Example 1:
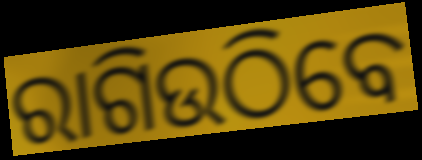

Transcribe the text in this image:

ରାଗିଉଠିବେ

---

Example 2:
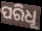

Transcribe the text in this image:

ପରିଧୂ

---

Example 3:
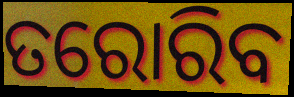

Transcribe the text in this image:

ତରୋରିବ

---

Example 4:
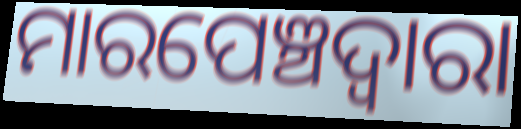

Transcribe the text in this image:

ମାରପେଞ୍ଚଦ୍ବାରା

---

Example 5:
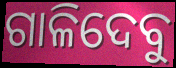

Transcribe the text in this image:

ଗାଳିଦେବୁ